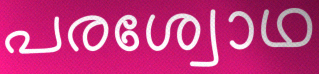
പരശ്വോഥ